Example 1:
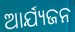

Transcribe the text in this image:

ଆର୍ଯ୍ୟଜନ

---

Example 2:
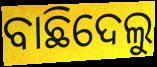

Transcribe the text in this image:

ବାଛିଦେଲୁ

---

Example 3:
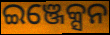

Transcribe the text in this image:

ଇଞ୍ଜେକ୍ସନ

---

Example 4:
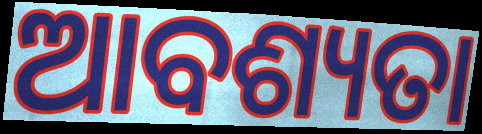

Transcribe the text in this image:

ଆବଶ୍ୟତା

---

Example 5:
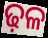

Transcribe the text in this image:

ଢ଼ଳ